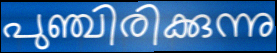
പുഞ്ചിരിക്കുന്നു